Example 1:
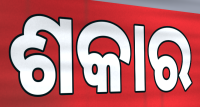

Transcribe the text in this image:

ଶକାର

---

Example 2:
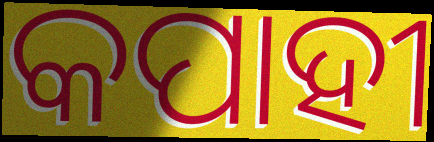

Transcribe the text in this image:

କପାହୀ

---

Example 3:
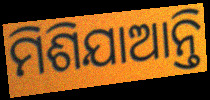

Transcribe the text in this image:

ମିଶିଯାଆନ୍ତି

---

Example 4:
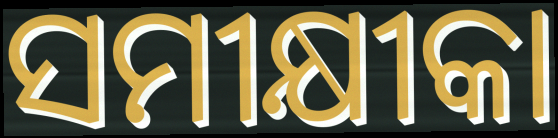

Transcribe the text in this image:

ସମୀକ୍ଷୀକା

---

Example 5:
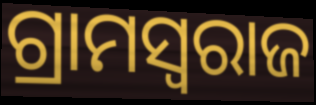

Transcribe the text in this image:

ଗ୍ରାମସ୍ବରାଜ